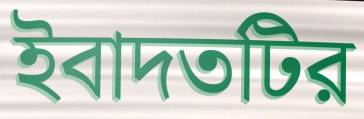
ইবাদতটির